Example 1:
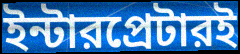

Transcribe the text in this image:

ইন্টারপ্রেটারই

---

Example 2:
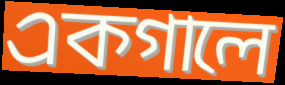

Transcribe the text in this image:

একগালে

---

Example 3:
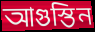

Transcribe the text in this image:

আগুস্তিন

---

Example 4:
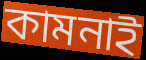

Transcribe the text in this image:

কামনাই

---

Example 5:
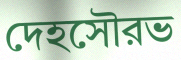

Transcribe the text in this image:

দেহসৌরভ